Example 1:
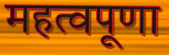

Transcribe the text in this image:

महत्वपूणा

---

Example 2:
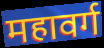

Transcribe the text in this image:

महावर्ग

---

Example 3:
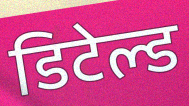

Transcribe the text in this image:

डिटेल्ड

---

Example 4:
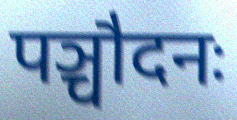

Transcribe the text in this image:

पञ्चौदनः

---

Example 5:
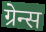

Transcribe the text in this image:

ग्रेन्स